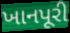
ખાનપૂરી